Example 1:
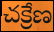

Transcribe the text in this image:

చక్రేణ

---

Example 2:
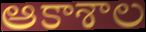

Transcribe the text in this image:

ఆకాశాల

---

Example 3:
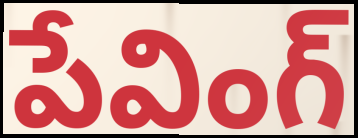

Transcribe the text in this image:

పేవింగ్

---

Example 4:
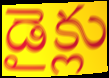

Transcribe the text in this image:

డైక్లు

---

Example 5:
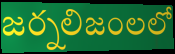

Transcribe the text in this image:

జర్నలిజంలలో